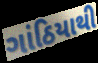
ગાંઠિયાથી